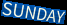
SUNDAY